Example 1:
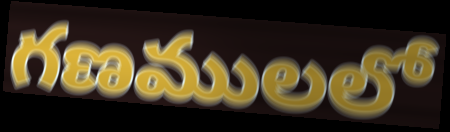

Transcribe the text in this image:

గణములలో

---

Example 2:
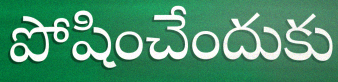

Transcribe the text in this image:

పోషించేందుకు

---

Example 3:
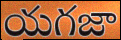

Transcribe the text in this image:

యగజా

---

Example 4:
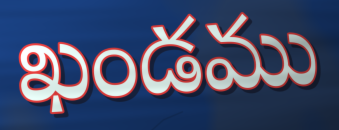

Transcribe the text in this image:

ఖండము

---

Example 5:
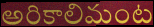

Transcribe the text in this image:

అరికాలిమంట